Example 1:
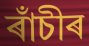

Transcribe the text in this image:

ৰাঁচীৰ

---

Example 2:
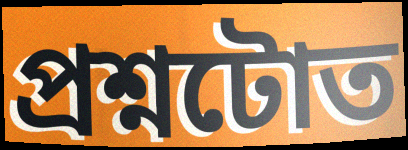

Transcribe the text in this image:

প্ৰশ্নটোত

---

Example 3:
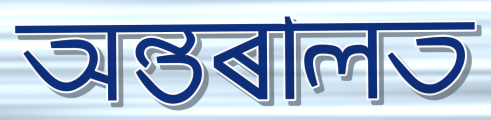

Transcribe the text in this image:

অন্তৰালত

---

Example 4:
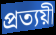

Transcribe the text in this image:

প্ৰত্যয়ী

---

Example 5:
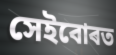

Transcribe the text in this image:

সেইবোৰত